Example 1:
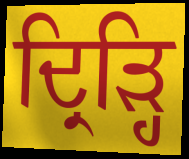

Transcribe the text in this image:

ਦ੍ਰਿੜ੍ਹਿ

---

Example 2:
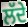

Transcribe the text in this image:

ਲੱਦੇ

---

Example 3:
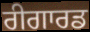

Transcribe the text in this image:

ਰੀਗਾਰਡ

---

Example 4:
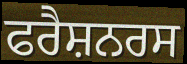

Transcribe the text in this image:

ਫਰੈਸ਼ਨਰਸ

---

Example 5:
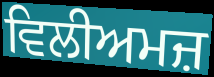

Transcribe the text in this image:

ਵਿਲੀਅਮਜ਼